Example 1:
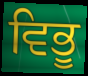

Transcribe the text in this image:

ਵਿਭੂ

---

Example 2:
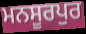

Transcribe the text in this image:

ਮਨਸੂਰਪੁਰ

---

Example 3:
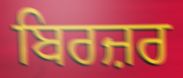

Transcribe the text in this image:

ਬਿਰਜ਼ਰ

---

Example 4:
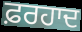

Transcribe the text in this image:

ਫ਼ਰਹਾਦ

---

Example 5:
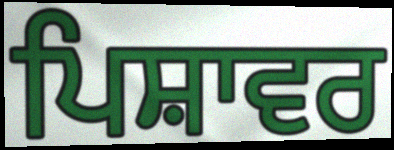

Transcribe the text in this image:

ਪਿਸ਼ਾਵਰ